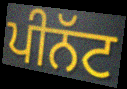
ਪੀਨੱਟ